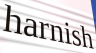
harnish